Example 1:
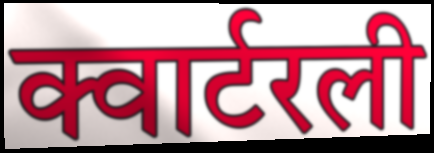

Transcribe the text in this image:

क्वार्टरली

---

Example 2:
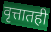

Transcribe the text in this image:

वृत्तातही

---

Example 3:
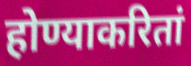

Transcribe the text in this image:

होण्याकरितां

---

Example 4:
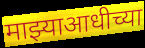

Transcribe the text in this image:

माझ्याआधीच्या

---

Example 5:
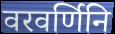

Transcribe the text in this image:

वरवर्णिनि